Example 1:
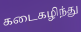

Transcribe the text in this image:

கடைகழிந்து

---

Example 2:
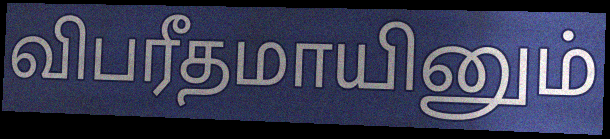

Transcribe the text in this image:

விபரீதமாயினும்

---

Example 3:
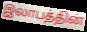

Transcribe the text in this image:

இலாபத்தின்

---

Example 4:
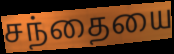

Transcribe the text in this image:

சந்தையை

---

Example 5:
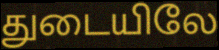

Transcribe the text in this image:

துடையிலே